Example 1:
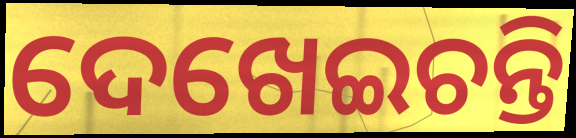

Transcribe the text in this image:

ଦେଖେଇଚନ୍ତି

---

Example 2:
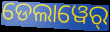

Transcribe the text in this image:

ଡେଲାୱେର୍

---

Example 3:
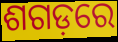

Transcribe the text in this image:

ଶଗଡ଼ରେ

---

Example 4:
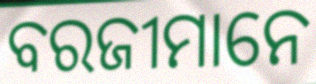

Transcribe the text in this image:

ବରଜୀମାନେ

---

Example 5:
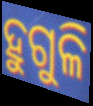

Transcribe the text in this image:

ହୁଗୁଳି